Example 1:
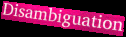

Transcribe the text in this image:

Disambiguation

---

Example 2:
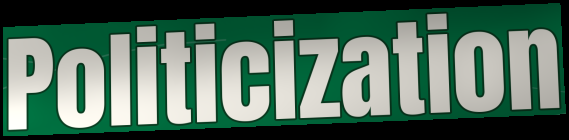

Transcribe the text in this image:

Politicization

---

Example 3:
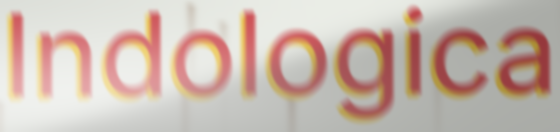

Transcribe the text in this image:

Indologica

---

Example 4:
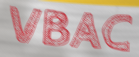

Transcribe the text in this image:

VBAC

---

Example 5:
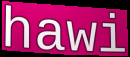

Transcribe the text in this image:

hawi